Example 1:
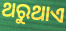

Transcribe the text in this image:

ଥରୁଥାଏ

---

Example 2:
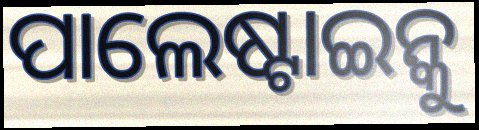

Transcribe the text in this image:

ପାଲେଷ୍ଟାଇନ୍କୁ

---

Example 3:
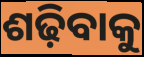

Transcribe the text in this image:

ଶଢ଼ିବାକୁ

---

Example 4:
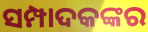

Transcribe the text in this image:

ସମ୍ପାଦକଙ୍କର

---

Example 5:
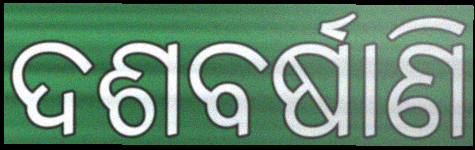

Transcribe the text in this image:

ଦଶବର୍ଷାଣି